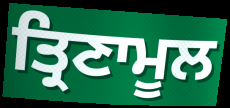
ਤ੍ਰਿਣਾਮੂਲ